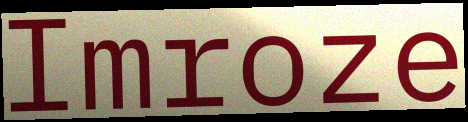
Imroze